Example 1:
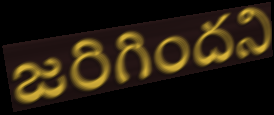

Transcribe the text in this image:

జరిగిందని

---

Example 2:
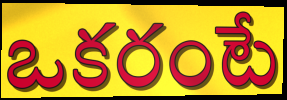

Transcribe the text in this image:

ఒకరంటే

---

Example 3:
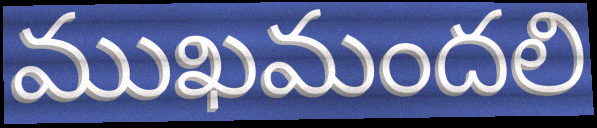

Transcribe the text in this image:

ముఖమందలి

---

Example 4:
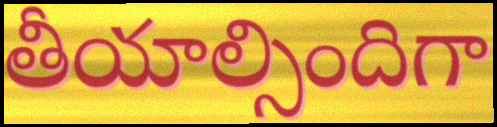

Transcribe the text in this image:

తీయాల్సిందిగా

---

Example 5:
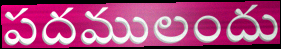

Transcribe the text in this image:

పదములందు